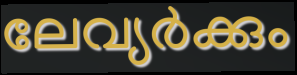
ലേവ്യർക്കും